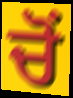
ਚੋਂ